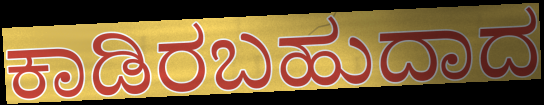
ಕಾಡಿರಬಹುದಾದ